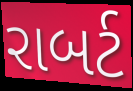
રાબર્ટ